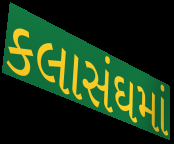
કલાસંઘમાં